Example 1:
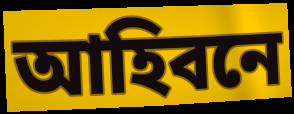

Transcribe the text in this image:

আহিবনে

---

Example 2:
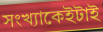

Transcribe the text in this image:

সংখ্যাকেইটাই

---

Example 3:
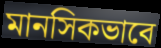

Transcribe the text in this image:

মানসিকভাবে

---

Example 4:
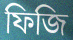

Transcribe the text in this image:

ফিজি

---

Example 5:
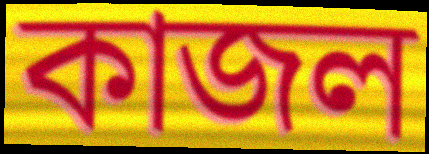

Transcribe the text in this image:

কাজল